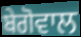
ਬੇਗੋਵਾਲ